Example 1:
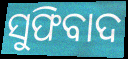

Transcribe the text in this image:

ସୁଫିବାଦ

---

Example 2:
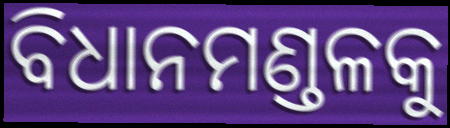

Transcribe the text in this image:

ବିଧାନମଣ୍ଡଳକୁ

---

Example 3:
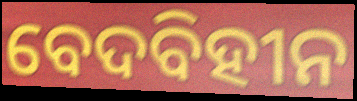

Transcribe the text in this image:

ବେଦବିହୀନ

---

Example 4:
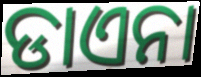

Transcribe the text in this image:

ଡାଏନା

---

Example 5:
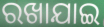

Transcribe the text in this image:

ରଖାଯାଇ